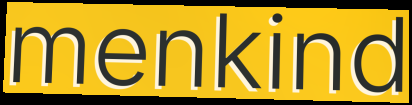
menkind